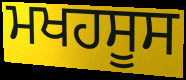
ਮਖਹਸੂਸ